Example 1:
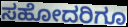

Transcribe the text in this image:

ಸಹೋದರಿಗೂ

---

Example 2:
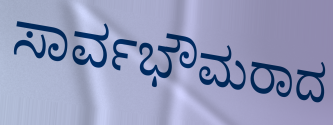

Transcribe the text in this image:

ಸಾರ್ವಭೌಮರಾದ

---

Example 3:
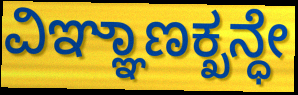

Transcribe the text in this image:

ವಿಞ್ಞಾಣಕ್ಖನ್ಧೇ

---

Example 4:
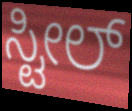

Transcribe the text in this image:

ಸ್ಟೀಲ್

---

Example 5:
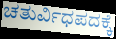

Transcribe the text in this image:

ಚತುರ್ವಿಧಪದಕ್ಕೆ